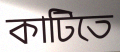
কাটিতে